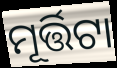
ମୂର୍ତ୍ତିଟା